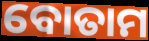
ବୋତାମ